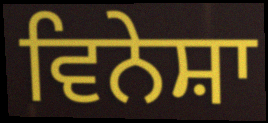
ਵਿਨੇਸ਼ਾ